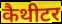
कैथीटर